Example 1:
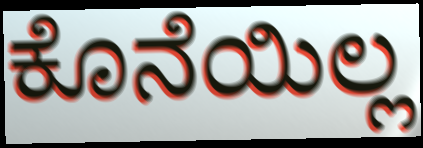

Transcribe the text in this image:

ಕೊನೆಯಿಲ್ಲ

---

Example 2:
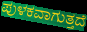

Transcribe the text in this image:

ಪುಳಕವಾಗುತ್ತದೆ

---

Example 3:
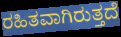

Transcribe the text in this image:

ರಹಿತವಾಗಿರುತ್ತದೆ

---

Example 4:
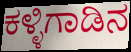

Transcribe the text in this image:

ಕಳ್ಳಿಗಾಡಿನ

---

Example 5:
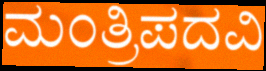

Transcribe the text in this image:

ಮಂತ್ರಿಪದವಿ